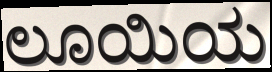
ಲೂಯಿಯ